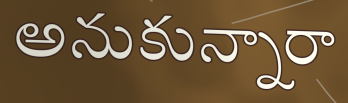
అనుకున్నారా